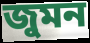
জুমন